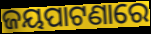
ଜୟପାଟଣାରେ